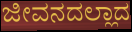
ಜೀವನದಲ್ಲಾದ